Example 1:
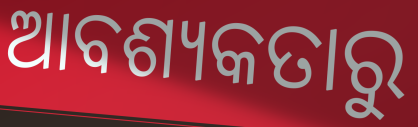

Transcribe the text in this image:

ଆବଶ୍ୟକତାରୁ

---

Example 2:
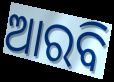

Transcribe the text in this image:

ଆରବି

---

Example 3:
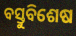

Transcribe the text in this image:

ବସ୍ତୁବିଶେଷ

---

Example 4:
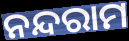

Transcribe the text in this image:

ନନ୍ଦରାମ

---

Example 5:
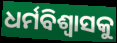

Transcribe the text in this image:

ଧର୍ମବିଶ୍ଵାସକୁ